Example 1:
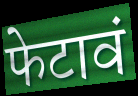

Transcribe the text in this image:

फेटावं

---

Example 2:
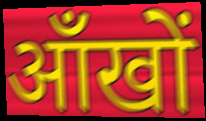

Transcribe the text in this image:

आँखों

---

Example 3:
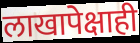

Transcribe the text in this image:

लाखापेक्षाही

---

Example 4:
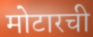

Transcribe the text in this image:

मोटारची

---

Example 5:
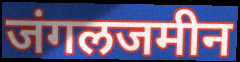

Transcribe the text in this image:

जंगलजमीन